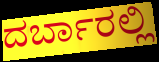
ದರ್ಬಾರಲ್ಲಿ